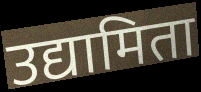
उद्यामिता